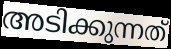
അടിക്കുന്നത്